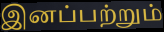
இனப்பற்றும்